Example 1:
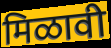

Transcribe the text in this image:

मिळावी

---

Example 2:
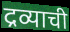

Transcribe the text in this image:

द्रव्याची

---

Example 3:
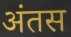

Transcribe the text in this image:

अंतस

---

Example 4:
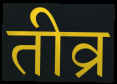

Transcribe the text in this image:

तीव्र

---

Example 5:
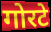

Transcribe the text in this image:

गोरटे